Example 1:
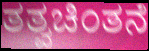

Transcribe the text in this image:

ತತ್ವಚಿಂತನೆ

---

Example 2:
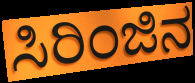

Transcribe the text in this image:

ಸಿರಿಂಜಿನ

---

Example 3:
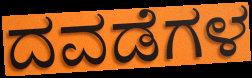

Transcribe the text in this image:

ದವಡೆಗಳ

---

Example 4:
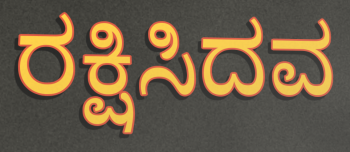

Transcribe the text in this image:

ರಕ್ಷಿಸಿದವ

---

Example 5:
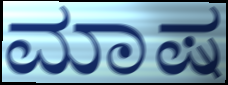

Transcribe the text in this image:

ಮಾಷ